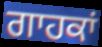
ਗਾਹਕਾਂ